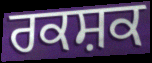
ਰਕਸ਼ਕ